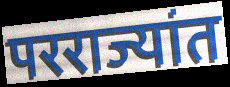
परराज्यांत